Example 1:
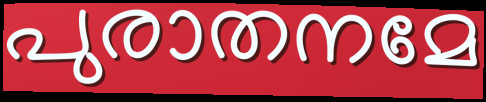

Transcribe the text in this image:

പുരാതനമേ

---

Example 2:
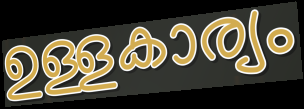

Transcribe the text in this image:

ഉള്ളകാര്യം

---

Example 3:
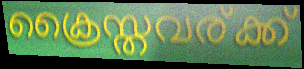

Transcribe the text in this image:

ക്രൈസ്തവര്ക്ക്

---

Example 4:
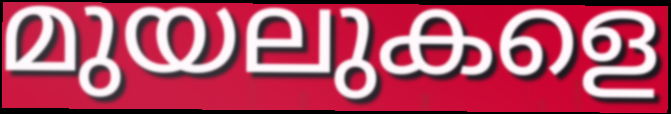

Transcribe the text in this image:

മുയലുകളെ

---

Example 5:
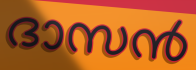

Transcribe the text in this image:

ദാസൻ